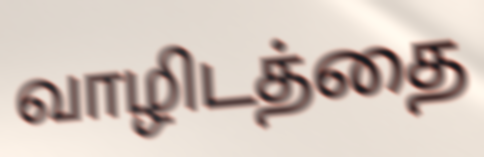
வாழிடத்தை